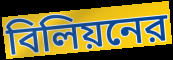
বিলিয়নের